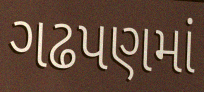
ગઢપણમાં